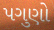
પગુણો